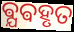
ଵ୍ଯଵହୃତ